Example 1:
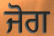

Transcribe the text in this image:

ਜੋਗ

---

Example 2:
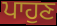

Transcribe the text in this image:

ਪਾਹੁਣ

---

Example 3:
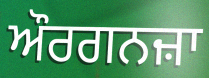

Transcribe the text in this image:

ਔਰਗਨਜ਼ਾ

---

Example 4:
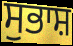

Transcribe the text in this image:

ਸੁਭਾਸ਼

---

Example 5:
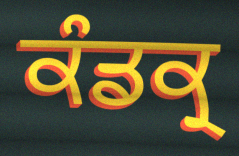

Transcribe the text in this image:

ਕੰਡਕ੍ਰ